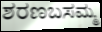
ಶರಣಬಸಮ್ಮ